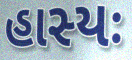
હાસ્યઃ